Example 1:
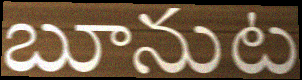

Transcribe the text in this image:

బూనుట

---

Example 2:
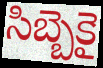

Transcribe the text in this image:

సిబ్బెకై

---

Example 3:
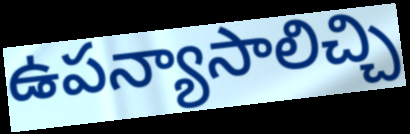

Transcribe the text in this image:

ఉపన్యాసాలిచ్చి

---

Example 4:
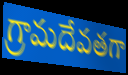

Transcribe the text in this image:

గ్రామదేవతగా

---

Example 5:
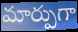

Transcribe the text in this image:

మార్పుగా